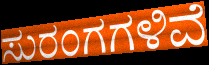
ಸುರಂಗಗಳಿವೆ